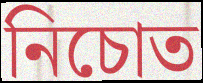
নিচোত